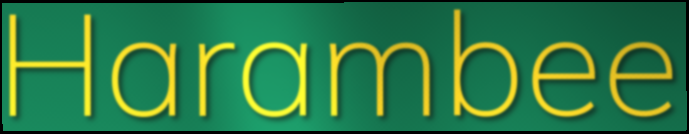
Harambee